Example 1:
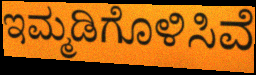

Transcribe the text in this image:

ಇಮ್ಮಡಿಗೊಳಿಸಿವೆ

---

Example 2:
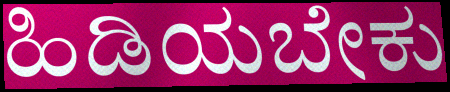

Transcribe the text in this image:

ಹಿಡಿಯಬೇಕು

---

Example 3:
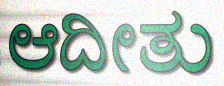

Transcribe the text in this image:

ಆದೀತು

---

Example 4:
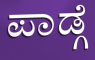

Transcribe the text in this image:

ಪಾಡ್ಗೆ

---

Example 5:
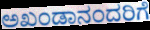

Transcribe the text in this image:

ಅಖಂಡಾನಂದರಿಗೆ